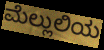
ಮೆಲ್ಲುಲಿಯ